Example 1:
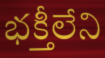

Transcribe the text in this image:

భక్తీలేని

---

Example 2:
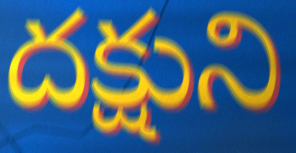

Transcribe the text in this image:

దక్షుని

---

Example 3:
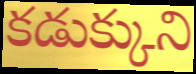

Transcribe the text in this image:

కడుక్కుని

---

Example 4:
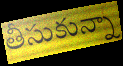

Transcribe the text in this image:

తీసుకున్నా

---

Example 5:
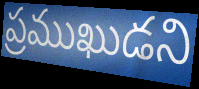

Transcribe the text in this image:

ప్రముఖుడని